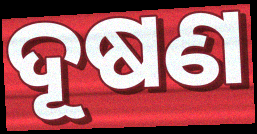
ଦୂଷଣ